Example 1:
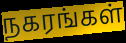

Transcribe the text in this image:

நகரங்கள்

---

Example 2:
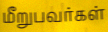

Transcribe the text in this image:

மீறுபவர்கள்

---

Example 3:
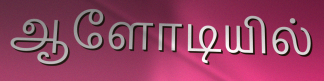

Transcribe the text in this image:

ஆளோடியில்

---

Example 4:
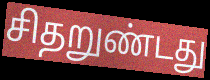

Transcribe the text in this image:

சிதறுண்டது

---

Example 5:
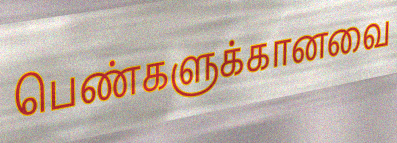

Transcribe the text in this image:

பெண்களுக்கானவை